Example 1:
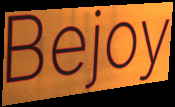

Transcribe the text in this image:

Bejoy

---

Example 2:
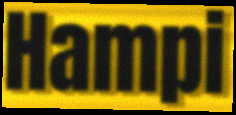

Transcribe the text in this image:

Hampi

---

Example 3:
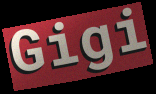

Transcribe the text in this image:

Gigi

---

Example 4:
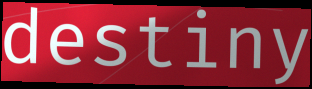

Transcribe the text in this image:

destiny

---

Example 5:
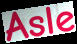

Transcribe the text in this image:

Asle